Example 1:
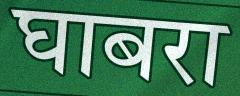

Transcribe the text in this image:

घाबरा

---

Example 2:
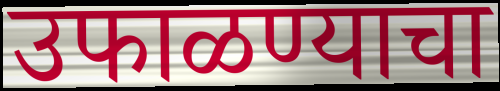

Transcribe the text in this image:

उफाळण्याचा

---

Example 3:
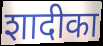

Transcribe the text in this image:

शादीका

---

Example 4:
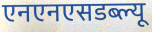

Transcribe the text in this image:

एनएनएसडब्ल्यू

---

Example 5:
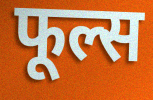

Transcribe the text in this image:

फूल्स